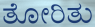
ತೋರಿತು